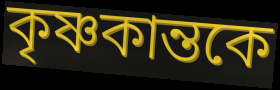
কৃষ্ণকান্তকে